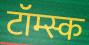
टॉम्स्क